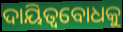
ଦାୟିତ୍ୱବୋଧକୁ